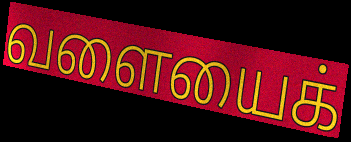
வளையைக்